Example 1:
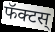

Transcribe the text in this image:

फॅक्टस्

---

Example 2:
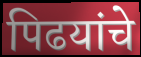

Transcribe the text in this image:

पिढयांचे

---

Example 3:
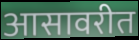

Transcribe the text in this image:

आसावरीत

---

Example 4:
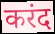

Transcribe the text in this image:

करंद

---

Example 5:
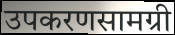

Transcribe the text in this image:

उपकरणसामग्री